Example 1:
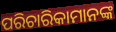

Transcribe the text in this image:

ପରିଚାରିକାମାନଙ୍କ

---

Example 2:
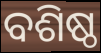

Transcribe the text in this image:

ବଶିଷ୍ଠ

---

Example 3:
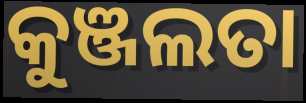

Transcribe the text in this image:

କୁଞ୍ଜଲତା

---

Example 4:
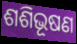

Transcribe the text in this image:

ଶଶିଭୂଷଣ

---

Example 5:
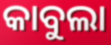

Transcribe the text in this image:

କାବୁଲା